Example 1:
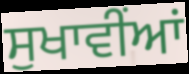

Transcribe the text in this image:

ਸੁਖਾਵੀਂਆਂ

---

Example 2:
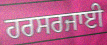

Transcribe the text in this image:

ਹਰਸਰਜਾਈ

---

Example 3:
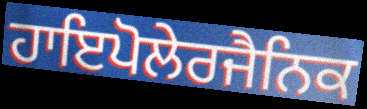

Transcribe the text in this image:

ਹਾਇਪੋਲੇਰਜੈਨਿਕ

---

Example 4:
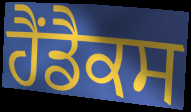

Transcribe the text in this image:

ਹੈਂਡੈਕਸ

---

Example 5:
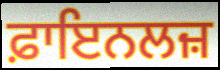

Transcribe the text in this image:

ਫ਼ਾਇਨਲਜ਼